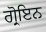
ਗ੍ਰੋਇਨ